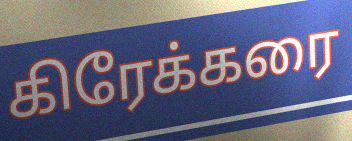
கிரேக்கரை